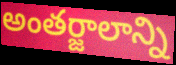
అంతర్జాలాన్ని